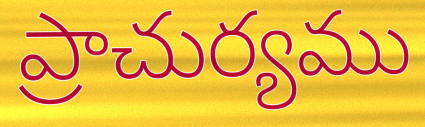
ప్రాచుర్యము